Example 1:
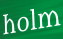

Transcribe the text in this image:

holm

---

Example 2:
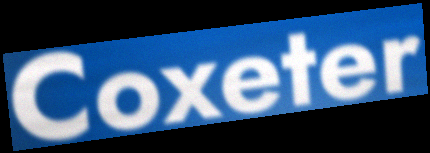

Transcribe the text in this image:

Coxeter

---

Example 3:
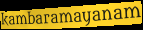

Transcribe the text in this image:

kambaramayanam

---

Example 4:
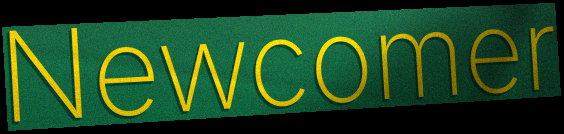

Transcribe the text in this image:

Newcomer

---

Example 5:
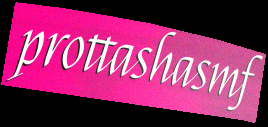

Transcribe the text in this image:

prottashasmf